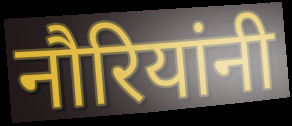
नौरियांनी